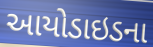
આયોડાઇડના